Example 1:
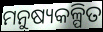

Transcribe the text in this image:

ମନୁଷ୍ୟକଳ୍ପିତ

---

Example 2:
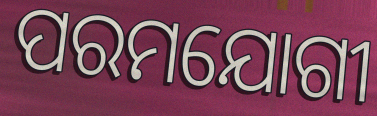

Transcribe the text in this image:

ପରମଯୋଗୀ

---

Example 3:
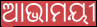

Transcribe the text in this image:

ଆଭାମୟୀ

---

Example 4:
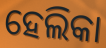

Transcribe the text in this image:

ହେଲିକା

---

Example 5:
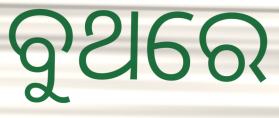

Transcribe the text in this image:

ବୁଥରେ